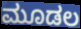
ಮೂಡಲ